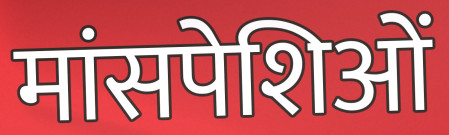
मांसपेशिओं